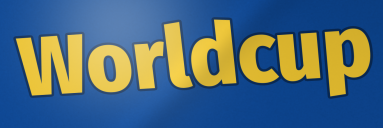
Worldcup